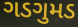
ગડગુમડ